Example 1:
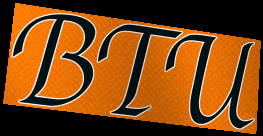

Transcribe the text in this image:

BTU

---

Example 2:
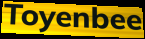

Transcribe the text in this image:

Toyenbee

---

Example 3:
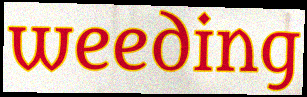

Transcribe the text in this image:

weeding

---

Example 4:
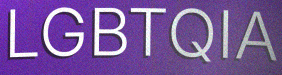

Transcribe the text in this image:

LGBTQIA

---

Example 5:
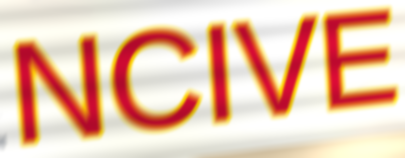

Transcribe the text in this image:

NCIVE